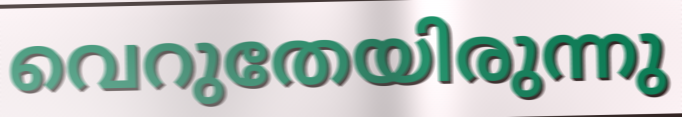
വെറുതേയിരുന്നു